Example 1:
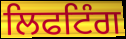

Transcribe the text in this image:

ਲਿਫਟਿੰਗ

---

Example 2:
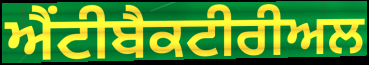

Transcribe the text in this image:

ਐਂਟੀਬੈਕਟੀਰੀਅਲ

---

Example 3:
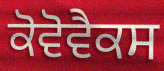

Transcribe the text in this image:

ਕੋਵੋਵੈਕਸ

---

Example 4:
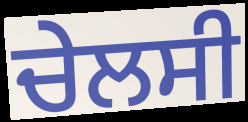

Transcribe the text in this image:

ਚੇਲਸੀ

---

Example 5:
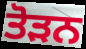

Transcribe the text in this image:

ਤੋੜਨ